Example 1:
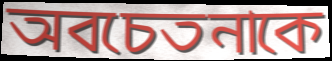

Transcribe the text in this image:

অবচেতনাকে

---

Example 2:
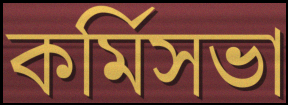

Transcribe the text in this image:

কর্মিসভা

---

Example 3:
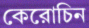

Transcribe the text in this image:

কেরোচিন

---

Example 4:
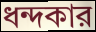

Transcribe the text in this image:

ধন্দকার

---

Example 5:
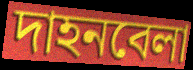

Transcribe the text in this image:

দাহনবেলা